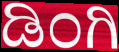
ಡಿಂಗಿ